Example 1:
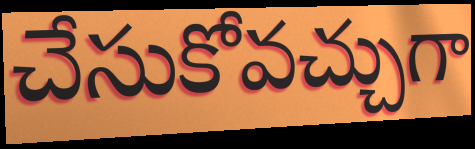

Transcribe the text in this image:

చేసుకోవచ్చుగా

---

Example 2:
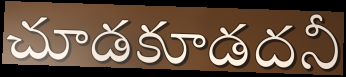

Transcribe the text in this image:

చూడకూడదనీ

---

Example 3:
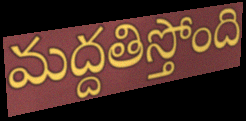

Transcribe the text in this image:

మద్దతిస్తోంది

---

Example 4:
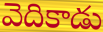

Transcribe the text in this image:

వెదికాడు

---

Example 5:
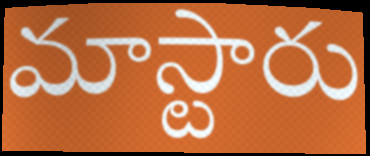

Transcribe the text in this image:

మాస్టారు